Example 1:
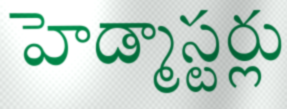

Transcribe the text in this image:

హెడ్మాస్టర్లు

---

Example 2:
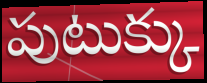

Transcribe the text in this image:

పుటుక్కు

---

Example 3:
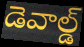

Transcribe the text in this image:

డెవాల్డ్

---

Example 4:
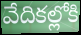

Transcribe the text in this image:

వేదికల్లోకి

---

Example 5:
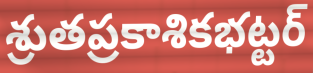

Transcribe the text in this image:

శ్రుతప్రకాశికభట్టర్